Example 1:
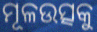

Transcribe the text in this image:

ମୂଳଉତ୍ସକୁ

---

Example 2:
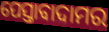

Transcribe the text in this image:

ପେସ୍ତାବାଦାମର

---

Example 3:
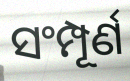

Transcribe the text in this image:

ସଂମ୍ପୂର୍ଣ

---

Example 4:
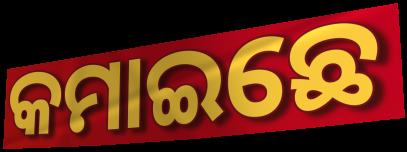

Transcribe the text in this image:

କମାଇଛେ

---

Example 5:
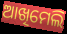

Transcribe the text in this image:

ଆଖିମେଲି